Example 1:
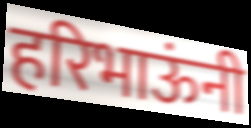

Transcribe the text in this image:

हरिभाऊंनी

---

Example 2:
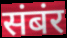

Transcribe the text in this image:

संबंर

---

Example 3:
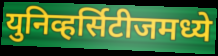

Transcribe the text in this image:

युनिव्हर्सिटीजमध्ये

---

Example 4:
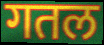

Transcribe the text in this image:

गतल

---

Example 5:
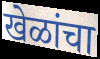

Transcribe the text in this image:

खेळांचा